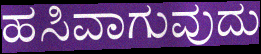
ಹಸಿವಾಗುವುದು